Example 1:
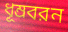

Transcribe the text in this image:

ধূম্রবরন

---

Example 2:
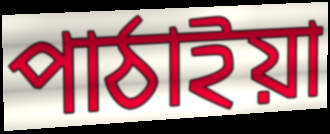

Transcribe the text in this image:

পাঠাইয়া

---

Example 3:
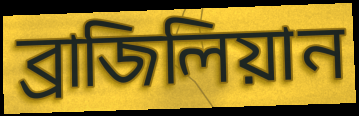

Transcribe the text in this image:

ব্রাজিলিয়ান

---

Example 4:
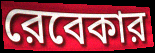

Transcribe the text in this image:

রেবেকার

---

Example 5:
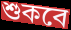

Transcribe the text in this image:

শুকবে